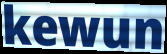
kewun